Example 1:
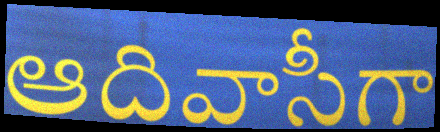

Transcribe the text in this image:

ఆదివాసీగా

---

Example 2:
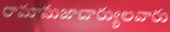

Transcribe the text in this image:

రామానుజాచార్యులవారు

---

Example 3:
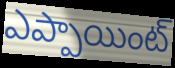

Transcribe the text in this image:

ఎప్పాయింట్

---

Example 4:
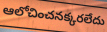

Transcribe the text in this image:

ఆలోచించనక్కరలేదు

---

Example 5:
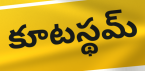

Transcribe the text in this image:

కూటస్థమ్